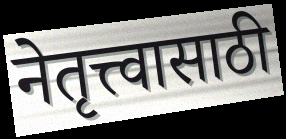
नेतृत्त्वासाठी